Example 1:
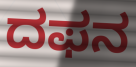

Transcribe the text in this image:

ದಫನ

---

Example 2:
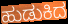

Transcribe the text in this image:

ಹುಡುಕಿದ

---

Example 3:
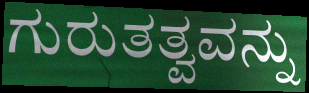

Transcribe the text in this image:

ಗುರುತತ್ವವನ್ನು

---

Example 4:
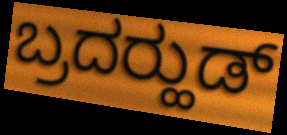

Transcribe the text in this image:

ಬ್ರದರ್‍ಹುಡ್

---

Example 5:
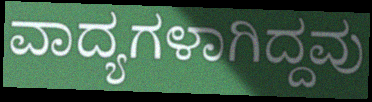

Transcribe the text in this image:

ವಾದ್ಯಗಳಾಗಿದ್ದವು